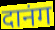
दानंग